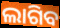
ଲାଗିବ